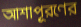
আশাপূরণের